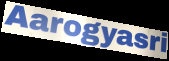
Aarogyasri